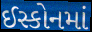
ઈસ્કોનમાં